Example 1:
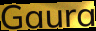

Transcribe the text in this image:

Gaura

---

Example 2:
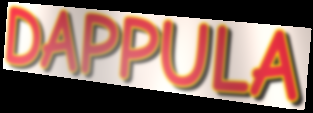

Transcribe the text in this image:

DAPPULA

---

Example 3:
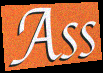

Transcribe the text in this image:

Ass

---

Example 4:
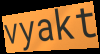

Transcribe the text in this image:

vyakt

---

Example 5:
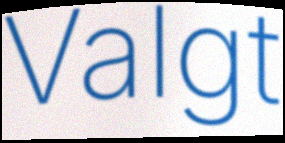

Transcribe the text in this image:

Valgt